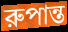
রুপান্ত